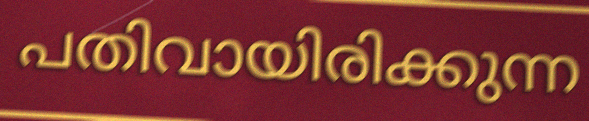
പതിവായിരിക്കുന്ന